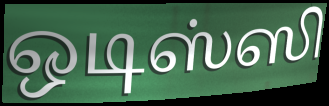
ஒடிஸ்ஸி